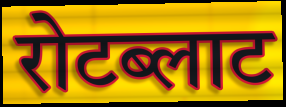
रोटब्लाट